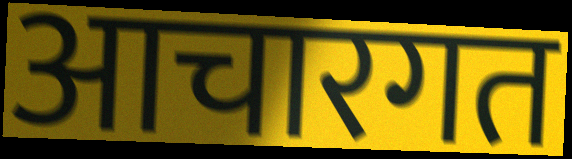
आचारगत